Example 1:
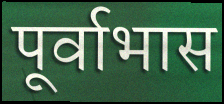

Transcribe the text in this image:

पूर्वाभास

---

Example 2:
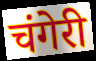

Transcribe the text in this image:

चंगेरी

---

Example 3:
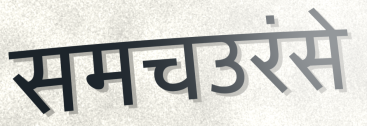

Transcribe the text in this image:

समचउरंसे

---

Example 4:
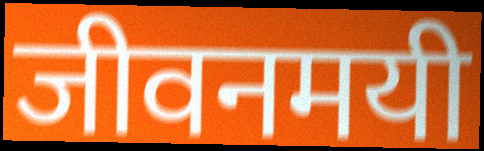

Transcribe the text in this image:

जीवनमयी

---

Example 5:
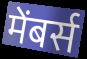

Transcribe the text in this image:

मेंबर्स